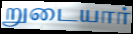
றுடையார்